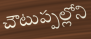
చౌటుప్పల్లోని